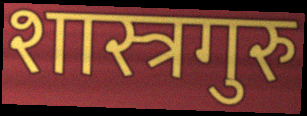
शास्त्रगुरु